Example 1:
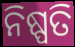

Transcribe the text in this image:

ନିଷ୍ପତି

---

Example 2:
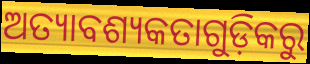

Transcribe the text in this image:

ଅତ୍ୟାବଶ୍ୟକତାଗୁଡ଼ିକରୁ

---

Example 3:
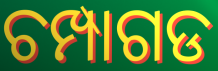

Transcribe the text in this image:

ଚମ୍ପାଗଡ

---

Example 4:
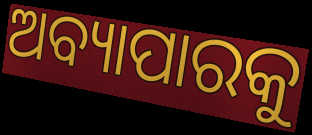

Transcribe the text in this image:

ଅବ୍ୟାପାରକୁ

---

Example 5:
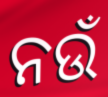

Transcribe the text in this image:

ନଉଁ